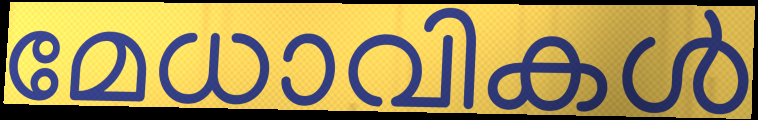
മേധാവികൾ